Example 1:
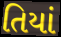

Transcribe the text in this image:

તિયાં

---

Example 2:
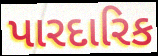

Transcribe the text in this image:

પારદારિક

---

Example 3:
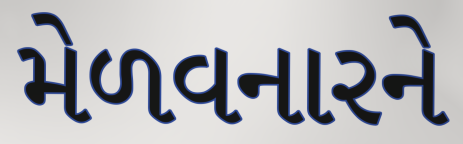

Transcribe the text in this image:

મેળવનારને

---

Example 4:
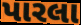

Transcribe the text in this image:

પારલા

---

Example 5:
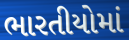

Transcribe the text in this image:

ભારતીયોમાં